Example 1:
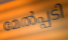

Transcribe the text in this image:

മേൽപ്പടി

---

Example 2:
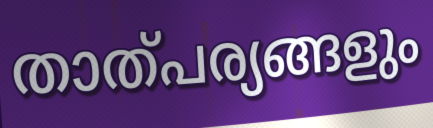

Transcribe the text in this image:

താത്പര്യങ്ങളും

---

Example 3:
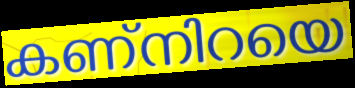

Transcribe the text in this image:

കണ്നിറയെ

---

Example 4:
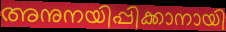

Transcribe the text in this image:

അനുനയിപ്പിക്കാനായി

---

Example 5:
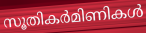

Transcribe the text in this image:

സൂതികർമിണികൾ